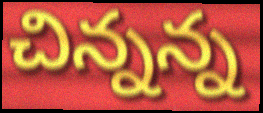
చిన్నన్న